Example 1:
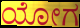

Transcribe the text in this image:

ಯೋಗ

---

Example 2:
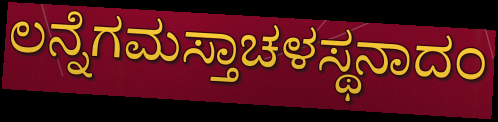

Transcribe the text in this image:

ಲನ್ನೆಗಮಸ್ತಾಚಳಸ್ಥನಾದಂ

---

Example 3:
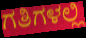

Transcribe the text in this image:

ಗತಿಗಳಲ್ಲಿ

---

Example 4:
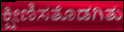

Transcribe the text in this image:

ಕ್ಷೀಣಿಸತೊಡಗಿತು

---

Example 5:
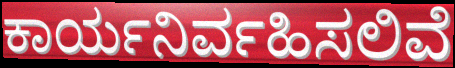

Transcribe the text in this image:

ಕಾರ್ಯನಿರ್ವಹಿಸಲಿವೆ